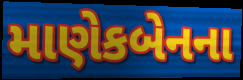
માણેકબેનના